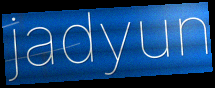
jadyun